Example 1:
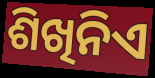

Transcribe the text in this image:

ଶିଖିନିଏ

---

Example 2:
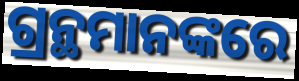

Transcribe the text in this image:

ଗ୍ରନ୍ଥମାନଙ୍କରେ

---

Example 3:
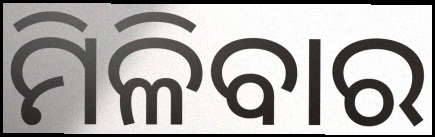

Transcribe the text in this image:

ମିଳିବାର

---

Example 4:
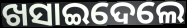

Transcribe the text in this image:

ଖସାଇଦେଲେ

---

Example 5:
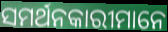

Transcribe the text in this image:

ସମର୍ଥନକାରୀମାନେ